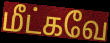
மீட்கவே